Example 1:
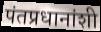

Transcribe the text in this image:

पंतप्रधानांशी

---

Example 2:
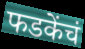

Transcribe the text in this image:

फडकेंचं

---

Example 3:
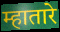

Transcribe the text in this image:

म्हातारे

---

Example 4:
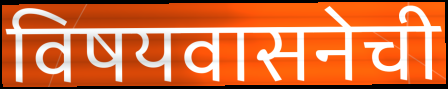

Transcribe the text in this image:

विषयवासनेची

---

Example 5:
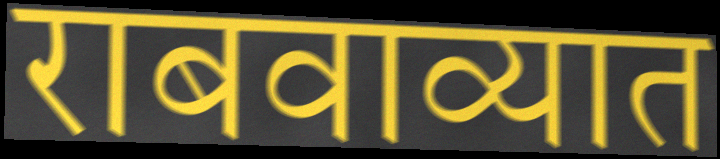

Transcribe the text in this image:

राबवाव्यात